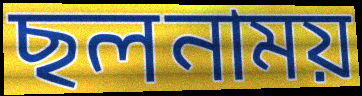
ছলনাময়